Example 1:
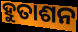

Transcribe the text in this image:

ହୁତାଶନ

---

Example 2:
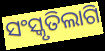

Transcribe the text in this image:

ସଂସ୍କୃତିଲାଗି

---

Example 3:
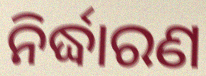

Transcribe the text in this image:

ନିର୍ଦ୍ଧାରଣ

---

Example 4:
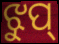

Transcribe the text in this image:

ଝୁପ୍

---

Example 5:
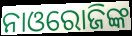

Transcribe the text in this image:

ନାଓରୋଜିଙ୍କ